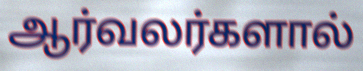
ஆர்வலர்களால்